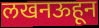
लखनऊहून